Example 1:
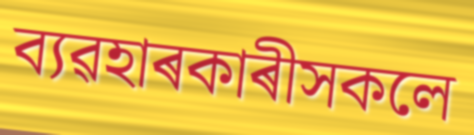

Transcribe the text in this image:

ব্যৱহাৰকাৰীসকলে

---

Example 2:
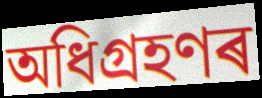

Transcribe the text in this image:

অধিগ্ৰহণৰ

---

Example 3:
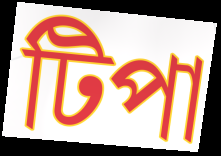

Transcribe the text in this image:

টিপা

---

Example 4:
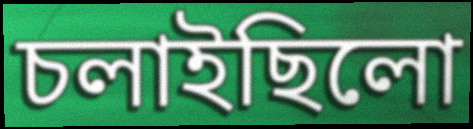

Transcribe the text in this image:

চলাইছিলো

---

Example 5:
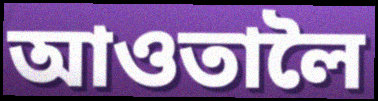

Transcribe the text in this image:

আওতালৈ